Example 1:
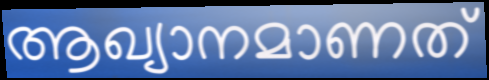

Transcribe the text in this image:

ആഖ്യാനമാണത്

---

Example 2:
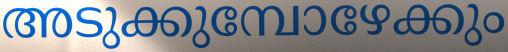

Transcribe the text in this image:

അടുക്കുമ്പോഴേക്കും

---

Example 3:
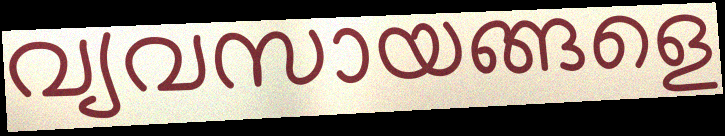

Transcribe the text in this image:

വ്യവസായങ്ങളെ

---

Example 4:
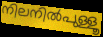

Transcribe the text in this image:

നിലനിൽപുള്ളൂ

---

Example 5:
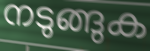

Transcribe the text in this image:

നടുങ്ങുക